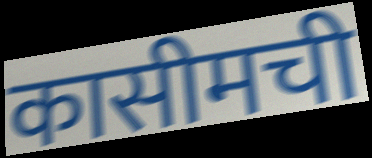
कासीमची